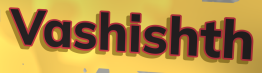
Vashishth